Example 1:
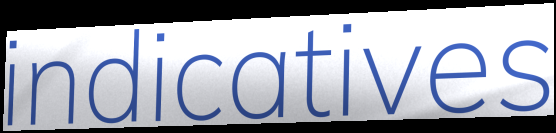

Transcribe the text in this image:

indicatives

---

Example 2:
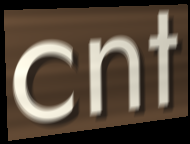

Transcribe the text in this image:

cnt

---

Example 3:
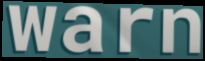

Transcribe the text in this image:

warn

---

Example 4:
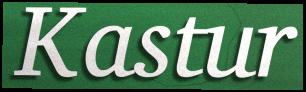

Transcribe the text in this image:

Kastur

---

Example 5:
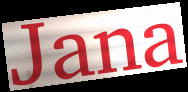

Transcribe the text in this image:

Jana